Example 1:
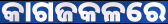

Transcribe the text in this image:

କାଗଜକଳରେ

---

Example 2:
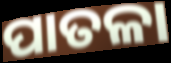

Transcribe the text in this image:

ପାତଳା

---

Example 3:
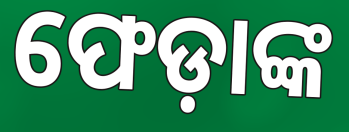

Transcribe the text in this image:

ଫେଡ଼ାଙ୍କ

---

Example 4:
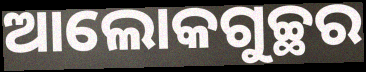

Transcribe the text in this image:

ଆଲୋକଗୁଚ୍ଛର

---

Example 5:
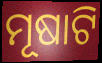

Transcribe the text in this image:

ମୂଷାଟି